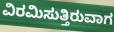
ವಿರಮಿಸುತ್ತಿರುವಾಗ